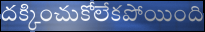
దక్కించుకోలేకపోయింది